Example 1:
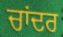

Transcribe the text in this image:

ਚਾਂਦਰ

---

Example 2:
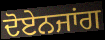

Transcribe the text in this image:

ਦੋਏਨਜਾਂਗ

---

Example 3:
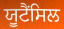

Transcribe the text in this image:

ਯੂਟੈਂਸਿਲ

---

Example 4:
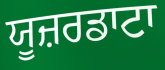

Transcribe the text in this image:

ਯੂਜ਼ਰਡਾਟਾ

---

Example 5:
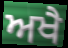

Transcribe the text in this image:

ਅਖੈ